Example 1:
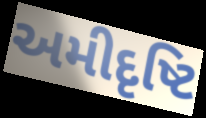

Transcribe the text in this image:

અમીદૃષ્ટિ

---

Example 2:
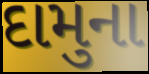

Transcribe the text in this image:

દામુના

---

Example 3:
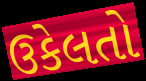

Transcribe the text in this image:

ઉકેલતો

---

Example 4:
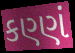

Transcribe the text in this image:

કણ્ણં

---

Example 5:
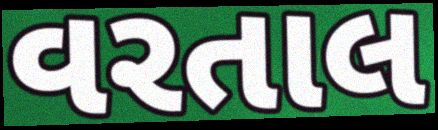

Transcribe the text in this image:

વરતાલ